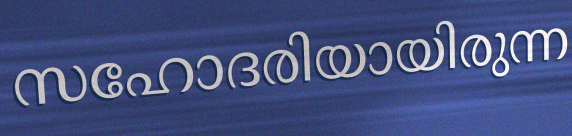
സഹോദരിയായിരുന്ന